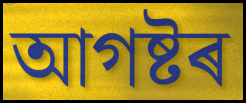
আগষ্টৰ